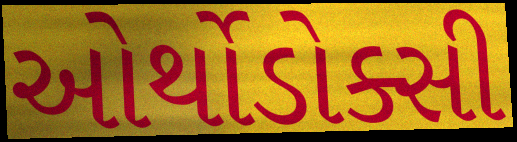
ઓર્થોડોક્સી